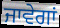
ਜਾਵੇਗਾਂ